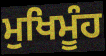
ਮੁਖਿਮੂੰਹ